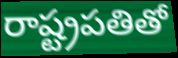
రాష్ట్రపతితో